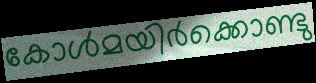
കോൾമയിർക്കൊണ്ടു